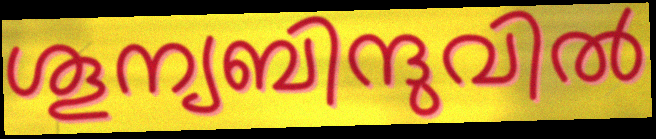
ശൂന്യബിന്ദുവിൽ